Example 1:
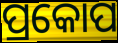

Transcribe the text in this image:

ପ୍ରକୋପ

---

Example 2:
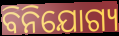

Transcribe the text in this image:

ବିନିଯୋଗ୍ୟ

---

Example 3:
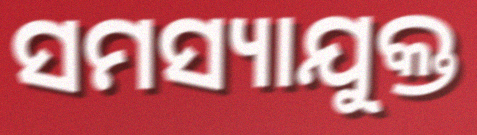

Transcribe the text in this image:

ସମସ୍ୟାଯୁକ୍ତ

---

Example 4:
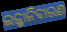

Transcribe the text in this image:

ଲଜ୍ଜାନିବାରଣ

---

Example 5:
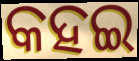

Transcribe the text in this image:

କହଇ